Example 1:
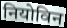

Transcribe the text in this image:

नियोविन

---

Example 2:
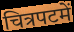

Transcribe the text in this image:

चित्रपटमें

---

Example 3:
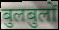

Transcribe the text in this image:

बुलबुलों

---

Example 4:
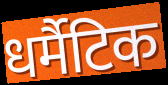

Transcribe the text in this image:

धर्मैटिक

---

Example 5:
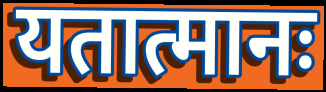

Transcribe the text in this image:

यतात्मानः